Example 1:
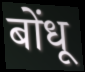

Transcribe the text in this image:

बोंधू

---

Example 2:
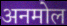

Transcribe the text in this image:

अनमोल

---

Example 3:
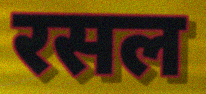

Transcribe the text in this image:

रसल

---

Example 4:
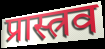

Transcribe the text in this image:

प्रास्त्रव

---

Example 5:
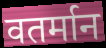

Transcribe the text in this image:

वतर्मान